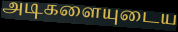
அடிகளையுடைய